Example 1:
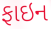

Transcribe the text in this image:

ફાઇન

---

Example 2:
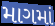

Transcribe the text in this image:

માગમાં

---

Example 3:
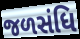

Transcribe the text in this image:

જળસંધિ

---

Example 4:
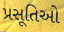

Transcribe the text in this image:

પ્રસૂતિઓ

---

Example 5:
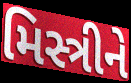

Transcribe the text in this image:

મિસ્ત્રીને